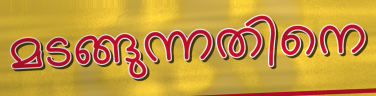
മടങ്ങുന്നതിനെ